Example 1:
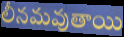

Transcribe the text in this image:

లీనమవుతాయి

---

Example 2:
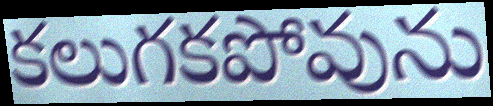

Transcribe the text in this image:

కలుగకపోవును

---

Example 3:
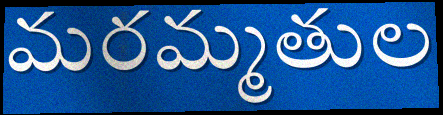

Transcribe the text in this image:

మరమ్మతుల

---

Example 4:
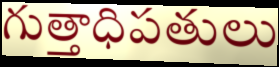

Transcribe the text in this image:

గుత్తాధిపతులు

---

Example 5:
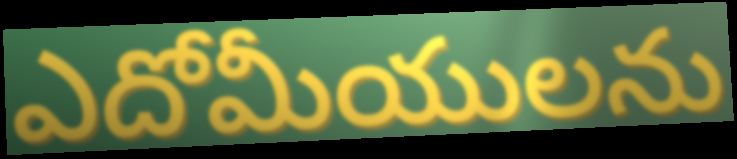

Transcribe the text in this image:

ఎదోమీయులను